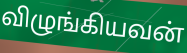
விழுங்கியவன்